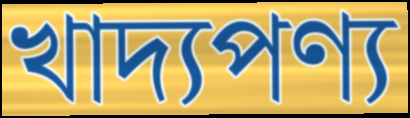
খাদ্যপণ্য